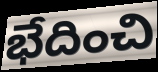
భేదించి